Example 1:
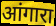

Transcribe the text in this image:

आंगारा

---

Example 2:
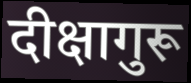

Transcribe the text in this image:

दीक्षागुरू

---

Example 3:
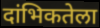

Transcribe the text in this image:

दांभिकतेला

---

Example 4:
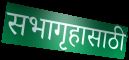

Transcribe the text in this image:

सभागृहासाठी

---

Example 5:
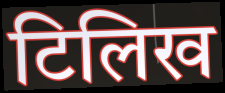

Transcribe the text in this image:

टिलिख